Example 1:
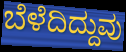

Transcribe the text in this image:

ಬೆಳೆದಿದ್ದುವು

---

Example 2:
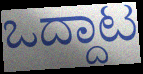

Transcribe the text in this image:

ಒದ್ದಾಟ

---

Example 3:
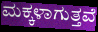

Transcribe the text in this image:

ಮಕ್ಕಳಾಗುತ್ತವೆ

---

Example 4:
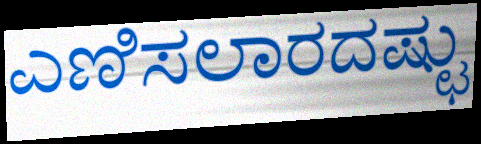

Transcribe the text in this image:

ಎಣಿಸಲಾರದಷ್ಟು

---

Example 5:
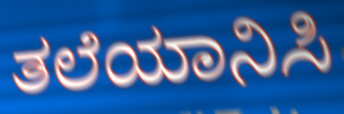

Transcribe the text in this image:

ತಲೆಯಾನಿಸಿ